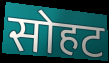
सोहट